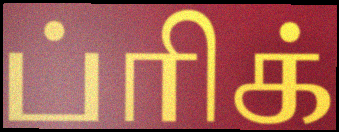
ப்ரிக்